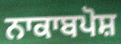
ਨਾਕਾਬਪੋਸ਼